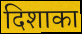
दिशाका